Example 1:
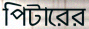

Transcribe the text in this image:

পিটারের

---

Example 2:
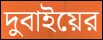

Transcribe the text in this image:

দুবাইয়ের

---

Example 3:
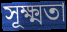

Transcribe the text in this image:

সূক্ষ্মতা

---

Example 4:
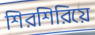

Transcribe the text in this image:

শিরশিরিয়ে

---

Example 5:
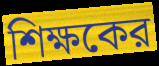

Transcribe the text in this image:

শিক্ষকের